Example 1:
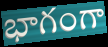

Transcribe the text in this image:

భాగంగా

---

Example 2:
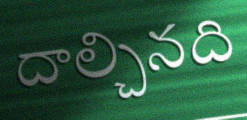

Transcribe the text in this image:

దాల్చినది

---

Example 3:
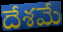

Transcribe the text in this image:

దేశమే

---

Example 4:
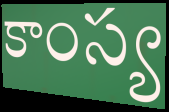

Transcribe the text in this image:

కాంస్య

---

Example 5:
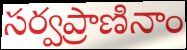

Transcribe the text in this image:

సర్వప్రాణినాం